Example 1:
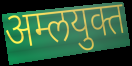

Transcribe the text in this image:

अम्लयुक्त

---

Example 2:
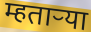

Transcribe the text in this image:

म्हताऱ्या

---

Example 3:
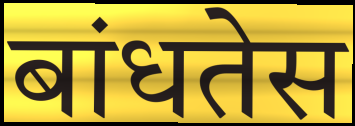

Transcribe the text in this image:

बांधतेस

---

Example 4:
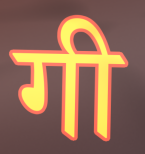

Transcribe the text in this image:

गी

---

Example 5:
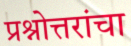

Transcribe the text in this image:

प्रश्नोत्तरांचा